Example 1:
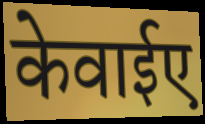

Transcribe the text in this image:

केवाईए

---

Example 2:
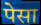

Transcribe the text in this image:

पेसा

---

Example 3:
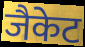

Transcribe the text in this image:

जैकेट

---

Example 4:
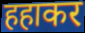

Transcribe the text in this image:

हहाकर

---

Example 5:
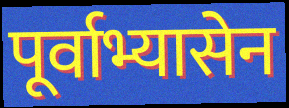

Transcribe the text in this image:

पूर्वाभ्यासेन